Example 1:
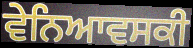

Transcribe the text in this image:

ਵੇਨਿਆਵਸਕੀ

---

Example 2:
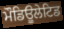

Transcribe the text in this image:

ਮੌਡਿਊਲੇਟਿਡ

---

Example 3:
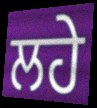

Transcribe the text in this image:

ਲਹੇ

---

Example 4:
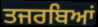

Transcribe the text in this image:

ਤਜਰਬਿਆਂ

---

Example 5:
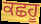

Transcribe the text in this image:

ਕਛਹੂ